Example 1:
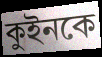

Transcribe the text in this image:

কুইনকে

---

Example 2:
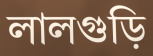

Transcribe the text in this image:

লালগুড়ি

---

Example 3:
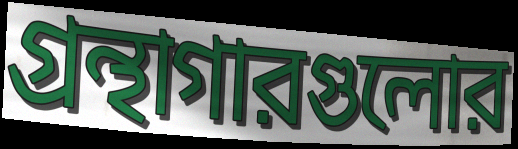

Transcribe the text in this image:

গ্রন্থাগারগুলোর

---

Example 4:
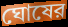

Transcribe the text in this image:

ঘোষের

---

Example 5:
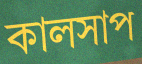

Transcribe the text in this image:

কালসাপ